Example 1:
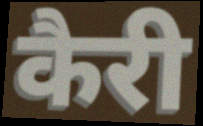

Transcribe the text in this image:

कैरी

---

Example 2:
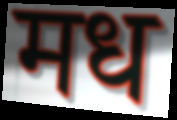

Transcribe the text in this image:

मध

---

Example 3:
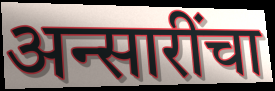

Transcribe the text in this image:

अन्सारींचा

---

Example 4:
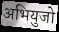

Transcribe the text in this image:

अभियुजो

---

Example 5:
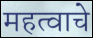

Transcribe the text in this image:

महत्वाचे